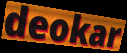
deokar